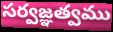
సర్వజ్ఞత్వము